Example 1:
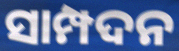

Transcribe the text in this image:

ସାମ୍ପଦନ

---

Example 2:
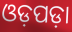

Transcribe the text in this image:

ଓଡ଼ପଡ଼ା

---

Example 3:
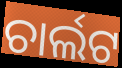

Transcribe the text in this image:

ଚାର୍ଲଟ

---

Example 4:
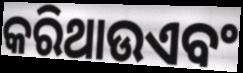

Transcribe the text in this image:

କରିଥାଉଏବଂ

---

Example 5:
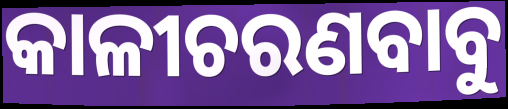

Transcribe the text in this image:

କାଳୀଚରଣବାବୁ